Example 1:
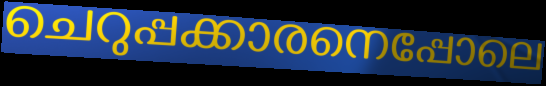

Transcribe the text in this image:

ചെറുപ്പക്കാരനെപ്പോലെ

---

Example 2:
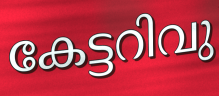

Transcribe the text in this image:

കേട്ടറിവു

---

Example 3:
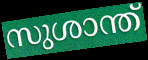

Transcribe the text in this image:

സുശാന്ത്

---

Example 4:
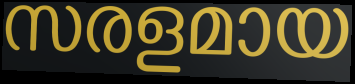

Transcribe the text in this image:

സരളമായ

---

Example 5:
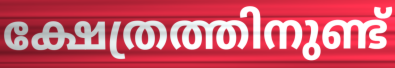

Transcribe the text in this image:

ക്ഷേത്രത്തിനുണ്ട്